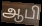
ஆபி